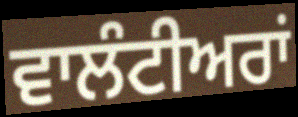
ਵਾਲੰਟੀਅਰਾਂ